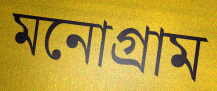
মনোগ্রাম